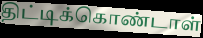
திட்டிக்கொண்டாள்